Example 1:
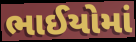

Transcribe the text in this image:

ભાઈયોમાં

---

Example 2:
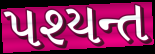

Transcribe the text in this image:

પશ્યન્ત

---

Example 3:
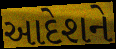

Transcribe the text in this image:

આદેશને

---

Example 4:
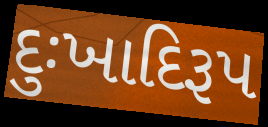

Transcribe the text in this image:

દુઃખાદિરૂપ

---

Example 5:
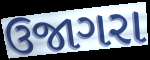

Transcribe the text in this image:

ઉજાગરા